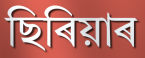
ছিৰিয়াৰ